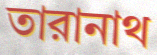
তারানাথ